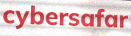
cybersafar